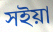
সইয়া